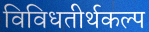
विविधतीर्थकल्प